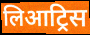
लिआट्रिस